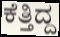
ಕೆತ್ತಿದ್ದ